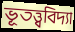
ভূতত্ত্ববিদ্যা